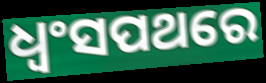
ଧ୍ବଂସପଥରେ